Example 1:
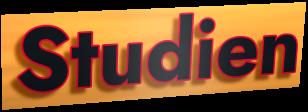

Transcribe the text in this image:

Studien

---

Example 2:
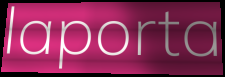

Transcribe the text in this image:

laporta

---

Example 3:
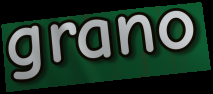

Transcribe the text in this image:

grano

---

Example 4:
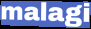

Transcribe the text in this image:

malagi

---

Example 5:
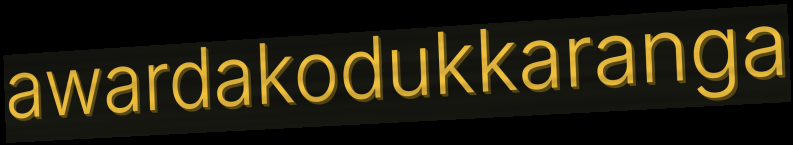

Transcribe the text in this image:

awardakodukkaranga